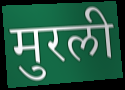
मुरली